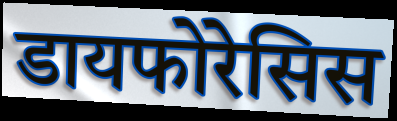
डायफोरेसिस